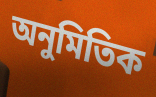
অনুমিতিক